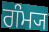
ਗੰਮ੍ਯ